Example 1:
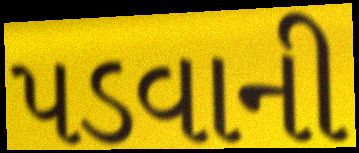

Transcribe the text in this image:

પડવાની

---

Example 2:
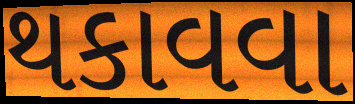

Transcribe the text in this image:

થકાવવા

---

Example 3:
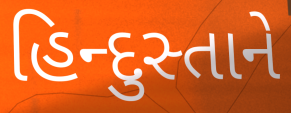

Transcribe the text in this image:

હિન્દુસ્તાને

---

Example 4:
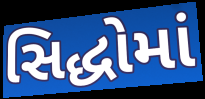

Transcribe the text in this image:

સિદ્ધોમાં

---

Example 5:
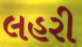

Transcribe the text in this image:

લહરી